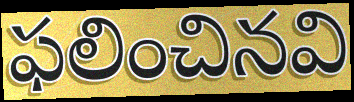
ఫలించినవి